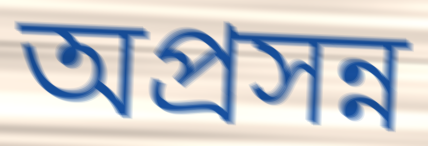
অপ্রসন্ন